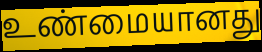
உண்மையானது